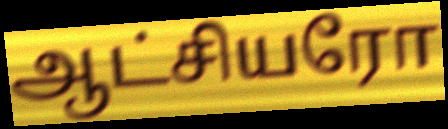
ஆட்சியரோ